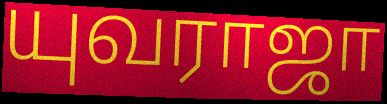
யுவராஜா